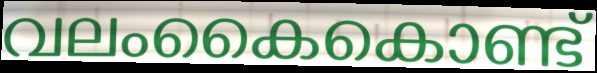
വലംകൈകൊണ്ട്